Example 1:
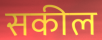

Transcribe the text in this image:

सकील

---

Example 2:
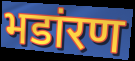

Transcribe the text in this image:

भडांरण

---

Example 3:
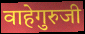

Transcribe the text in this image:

वाहेगुरुजी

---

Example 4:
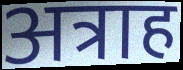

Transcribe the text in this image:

अत्राह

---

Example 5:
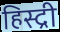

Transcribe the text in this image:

हिस्द्री